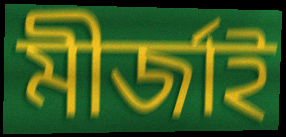
মীর্জাই